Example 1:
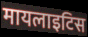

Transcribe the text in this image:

मायलाइटिस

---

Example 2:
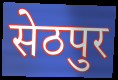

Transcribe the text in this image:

सेठपुर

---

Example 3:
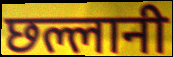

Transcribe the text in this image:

छल्लानी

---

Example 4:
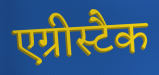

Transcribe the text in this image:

एग्रीस्टैक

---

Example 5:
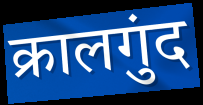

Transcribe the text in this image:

क्रालगुंद